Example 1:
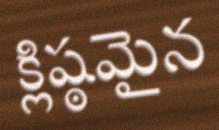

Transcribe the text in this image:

క్లిష్ఠమైన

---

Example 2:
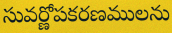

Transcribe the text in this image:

సువర్ణోపకరణములను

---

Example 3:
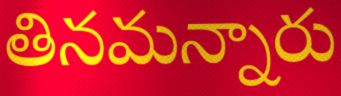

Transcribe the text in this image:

తినమన్నారు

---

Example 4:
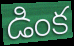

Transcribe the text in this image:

డింక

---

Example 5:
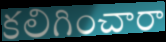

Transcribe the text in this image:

కలిగించారా